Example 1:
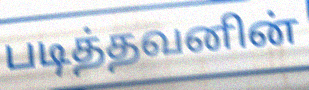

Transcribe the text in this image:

படித்தவனின்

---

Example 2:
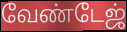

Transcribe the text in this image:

வேண்டேஜ்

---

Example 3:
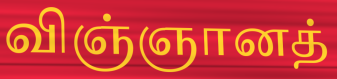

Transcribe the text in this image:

விஞ்ஞானத்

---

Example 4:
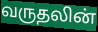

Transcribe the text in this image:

வருதலின்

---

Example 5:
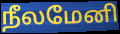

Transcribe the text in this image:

நீலமேனி